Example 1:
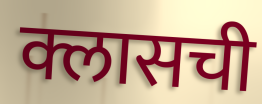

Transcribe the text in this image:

क्‍लासची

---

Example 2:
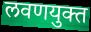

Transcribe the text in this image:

लवणयुक्त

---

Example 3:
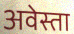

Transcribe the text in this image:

अवेस्ता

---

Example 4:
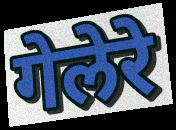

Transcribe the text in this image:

गेलेरे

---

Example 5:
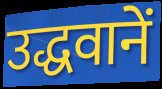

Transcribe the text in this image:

उद्धवानें